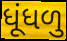
ધૂંધળુ